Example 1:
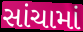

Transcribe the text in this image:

સાંચામાં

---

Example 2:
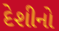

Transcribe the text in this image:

દેશીનો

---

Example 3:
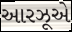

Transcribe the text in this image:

આરઝૂએ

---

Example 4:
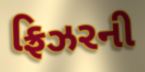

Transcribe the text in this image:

ફ્રિઝરની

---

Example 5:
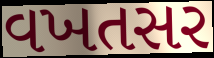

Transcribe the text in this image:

વખતસર